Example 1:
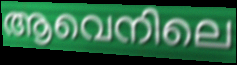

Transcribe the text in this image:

ആവെനിലെ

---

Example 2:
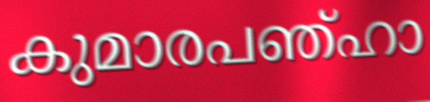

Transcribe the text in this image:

കുമാരപഞ്ഹാ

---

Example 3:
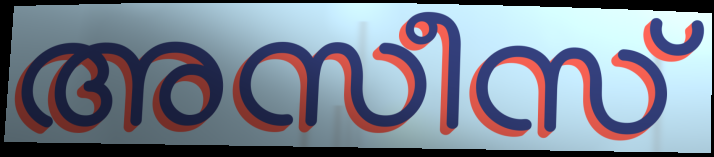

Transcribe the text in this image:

അസീസ്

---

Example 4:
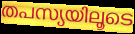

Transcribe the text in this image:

തപസ്യയിലൂടെ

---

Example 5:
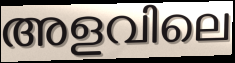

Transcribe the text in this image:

അളവിലെ